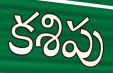
కశిపు